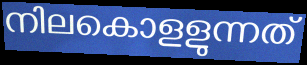
നിലകൊളളുന്നത്